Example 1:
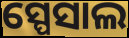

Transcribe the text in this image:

ସ୍ପେସାଲ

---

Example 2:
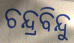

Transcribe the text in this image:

ଚନ୍ଦ୍ରବିନ୍ଦୁ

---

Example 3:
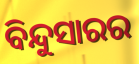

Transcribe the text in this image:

ବିନ୍ଦୁସାରର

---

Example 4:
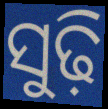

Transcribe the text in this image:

ସୁଢ଼ି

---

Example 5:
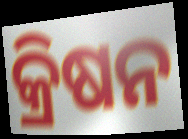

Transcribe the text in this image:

କ୍ରିଷନ